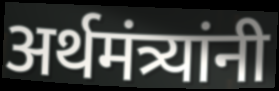
अर्थमंत्र्यांनी